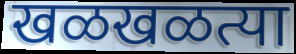
खळखळत्या